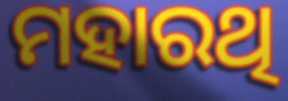
ମହାରଥି